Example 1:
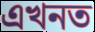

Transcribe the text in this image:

এখনত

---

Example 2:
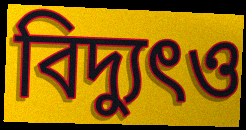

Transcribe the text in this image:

বিদ্যুৎও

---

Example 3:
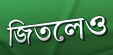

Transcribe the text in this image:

জিতলেও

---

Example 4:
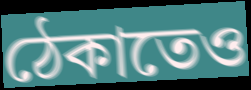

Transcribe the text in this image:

ঠেকাতেও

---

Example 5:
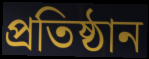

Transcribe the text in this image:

প্রতিষ্ঠান